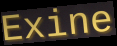
Exine